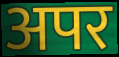
अपर